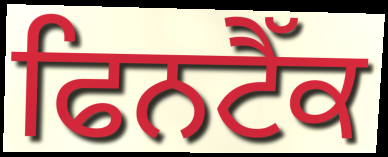
ਫਿਨਟੈੱਕ